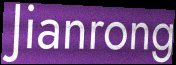
Jianrong